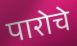
पारोचे